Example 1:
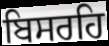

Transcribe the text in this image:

ਬਿਸਰਹਿ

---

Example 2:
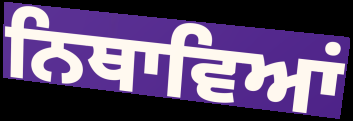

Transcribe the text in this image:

ਨਿਥਾਵਿਆਂ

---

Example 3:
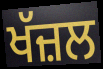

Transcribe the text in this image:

ਖੱਜ਼ਲ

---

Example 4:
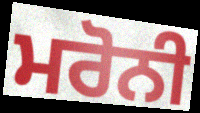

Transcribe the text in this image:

ਮਰੋਨੀ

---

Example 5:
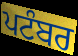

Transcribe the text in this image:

ਪਟੰਬਰ